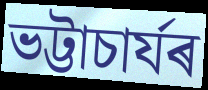
ভট্টাচাৰ্যৰ